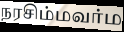
நரசிம்மவர்ம